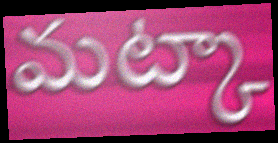
మట్కా